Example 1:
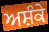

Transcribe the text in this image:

ਅਸ਼ੰਕੇ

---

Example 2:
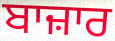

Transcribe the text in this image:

ਬਾਜ਼ਾਰ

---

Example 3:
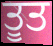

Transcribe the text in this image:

ਤੂਤ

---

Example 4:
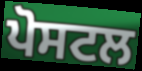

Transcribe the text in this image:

ਪੋਸਟਲ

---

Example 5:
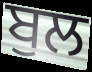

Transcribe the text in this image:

ਬੁਲ